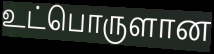
உட்பொருளான